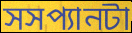
সসপ্যানটা